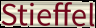
Stieffel